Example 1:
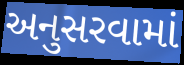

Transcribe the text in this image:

અનુસરવામાં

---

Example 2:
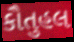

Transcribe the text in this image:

કૌતુહલ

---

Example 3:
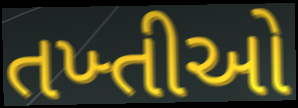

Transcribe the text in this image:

તખ્તીઓ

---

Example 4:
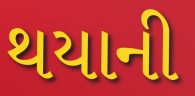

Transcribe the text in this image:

થયાની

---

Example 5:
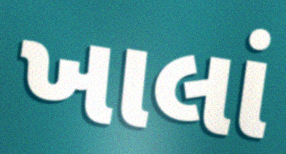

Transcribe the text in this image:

ખાલાં